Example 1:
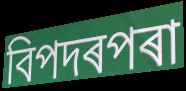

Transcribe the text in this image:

বিপদৰপৰা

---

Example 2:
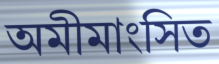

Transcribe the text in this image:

অমীমাংসিত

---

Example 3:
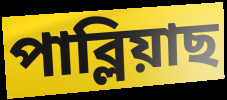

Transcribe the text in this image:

পাব্লিয়াছ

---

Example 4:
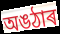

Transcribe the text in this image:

অঙঠাৰ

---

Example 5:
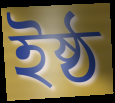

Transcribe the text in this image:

ইষ্ঠ